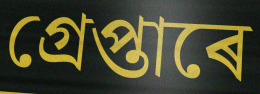
গ্ৰেপ্তাৰে